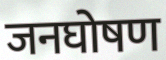
जनघोषण